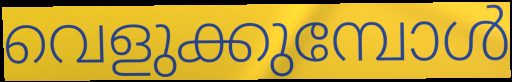
വെളുക്കുമ്പോൾ